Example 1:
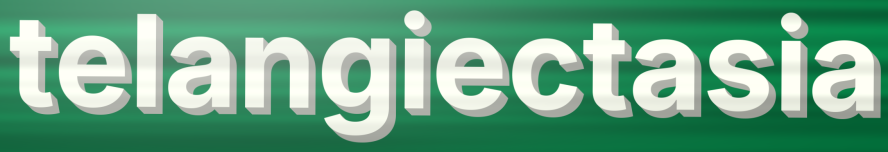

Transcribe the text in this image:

telangiectasia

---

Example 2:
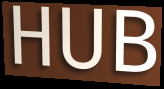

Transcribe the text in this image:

HUB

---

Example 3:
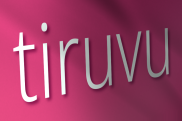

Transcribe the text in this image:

tiruvu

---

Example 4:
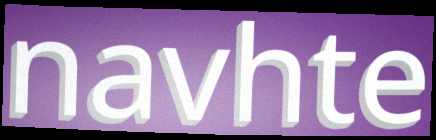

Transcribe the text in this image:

navhte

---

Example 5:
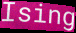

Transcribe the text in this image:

Ising